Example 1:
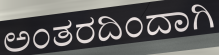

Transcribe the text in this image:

ಅಂತರದಿಂದಾಗಿ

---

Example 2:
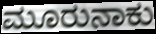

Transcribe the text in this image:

ಮೂರುನಾಕು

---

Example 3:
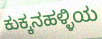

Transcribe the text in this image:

ಕುಕ್ಕನಹಳ್ಳಿಯ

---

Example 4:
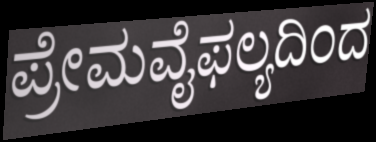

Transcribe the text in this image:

ಪ್ರೇಮವೈಫಲ್ಯದಿಂದ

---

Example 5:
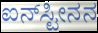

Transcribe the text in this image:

ಐನ್‌ಸ್ಟೀನನ